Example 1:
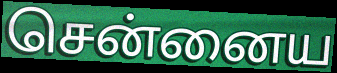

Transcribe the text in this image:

சென்னைய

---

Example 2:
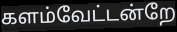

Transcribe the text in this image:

களம்வேட்டன்றே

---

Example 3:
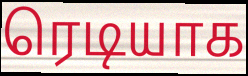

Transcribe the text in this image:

ரெடியாக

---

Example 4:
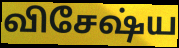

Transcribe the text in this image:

விசேஷ்ய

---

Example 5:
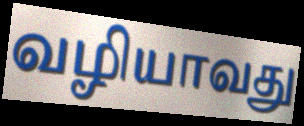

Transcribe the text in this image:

வழியாவது